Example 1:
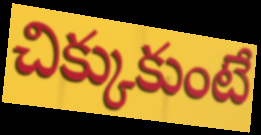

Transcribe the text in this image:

చిక్కుకుంటే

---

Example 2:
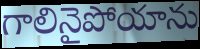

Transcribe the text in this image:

గాలినైపోయాను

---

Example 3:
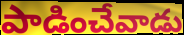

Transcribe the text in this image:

పాడించేవాడు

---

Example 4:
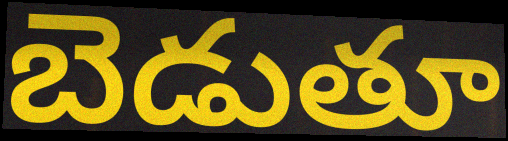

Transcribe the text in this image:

బెడుతూ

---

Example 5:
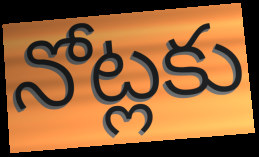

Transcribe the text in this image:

నోట్లకు